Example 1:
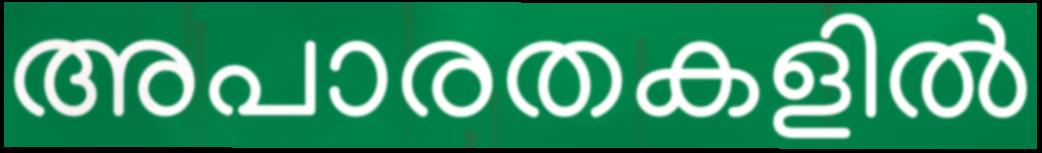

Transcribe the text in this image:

അപാരതകളിൽ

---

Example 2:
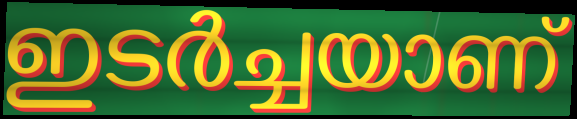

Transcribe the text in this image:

ഇടർച്ചയാണ്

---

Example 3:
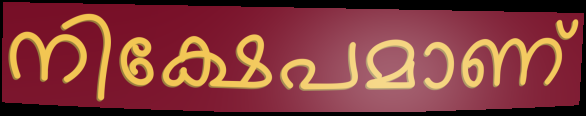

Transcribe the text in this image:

നിക്ഷേപമാണ്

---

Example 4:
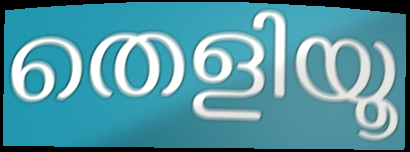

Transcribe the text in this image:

തെളിയൂ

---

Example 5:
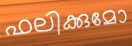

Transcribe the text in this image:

ഫലിക്കുമോ